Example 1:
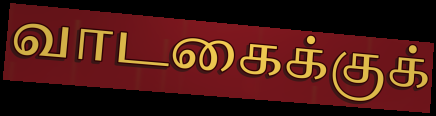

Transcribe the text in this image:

வாடகைக்குக்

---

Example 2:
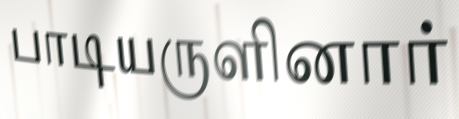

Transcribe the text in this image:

பாடியருளினார்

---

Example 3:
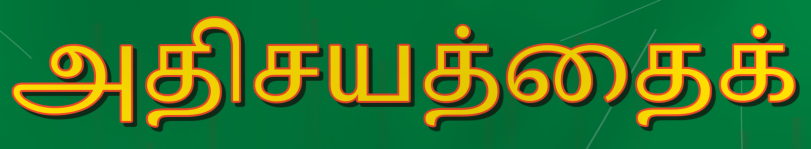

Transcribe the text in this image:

அதிசயத்தைக்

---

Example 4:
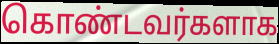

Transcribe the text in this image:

கொண்டவர்களாக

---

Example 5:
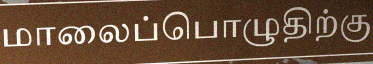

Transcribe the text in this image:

மாலைப்பொழுதிற்கு